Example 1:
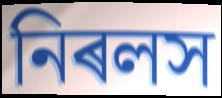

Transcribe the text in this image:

নিৰলস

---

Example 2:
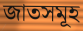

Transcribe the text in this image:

জাতসমূহ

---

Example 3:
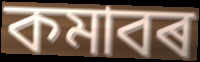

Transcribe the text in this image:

কমাবৰ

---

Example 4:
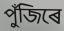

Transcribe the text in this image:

পুঁজিৰে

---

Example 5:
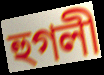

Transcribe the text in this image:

হুগলী